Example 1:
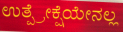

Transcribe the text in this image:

ಉತ್ಪ್ರೇಕ್ಷೆಯೇನಲ್ಲ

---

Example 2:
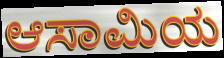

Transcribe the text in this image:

ಆಸಾಮಿಯ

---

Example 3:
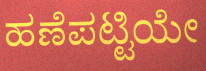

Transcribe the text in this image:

ಹಣೆಪಟ್ಟಿಯೇ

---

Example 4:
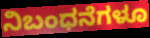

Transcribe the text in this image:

ನಿಬಂಧನೆಗಳೂ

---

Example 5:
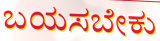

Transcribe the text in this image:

ಬಯಸಬೇಕು